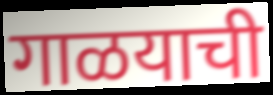
गाळयाची